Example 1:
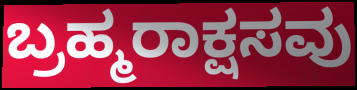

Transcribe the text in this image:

ಬ್ರಹ್ಮರಾಕ್ಷಸವು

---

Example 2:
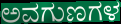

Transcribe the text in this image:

ಅವಗುಣಗಳ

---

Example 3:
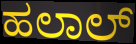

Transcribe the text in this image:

ಹಲಾಲ್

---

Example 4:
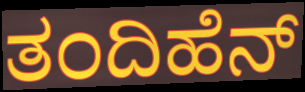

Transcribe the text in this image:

ತಂದಿಹೆನ್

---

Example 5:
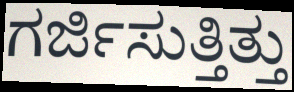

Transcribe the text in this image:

ಗರ್ಜಿಸುತ್ತಿತ್ತು